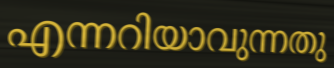
എന്നറിയാവുന്നതു